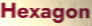
Hexagon